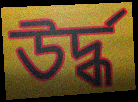
উৰ্দ্ধ